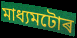
মাধ্যমটোৰ